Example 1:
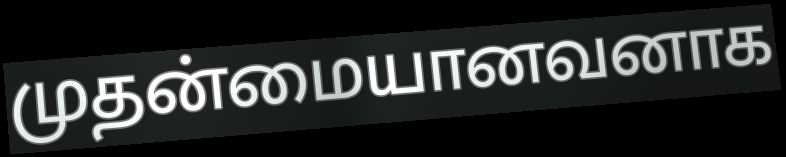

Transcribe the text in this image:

முதன்மையானவனாக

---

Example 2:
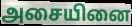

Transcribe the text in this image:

அசையினை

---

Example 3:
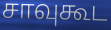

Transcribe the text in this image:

சாவுகூட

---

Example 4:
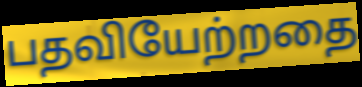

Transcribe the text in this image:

பதவியேற்றதை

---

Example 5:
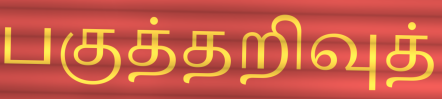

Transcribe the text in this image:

பகுத்தறிவுத்